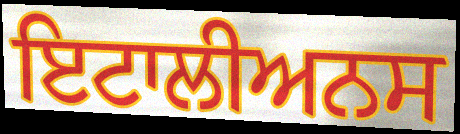
ਇਟਾਲੀਅਨਸ